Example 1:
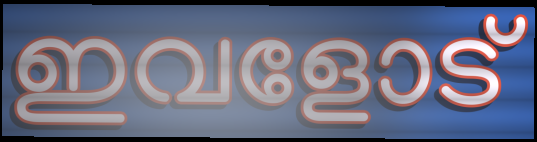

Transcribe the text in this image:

ഇവളോട്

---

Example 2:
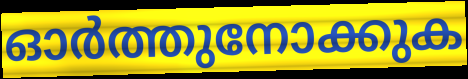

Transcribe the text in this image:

ഓർത്തുനോക്കുക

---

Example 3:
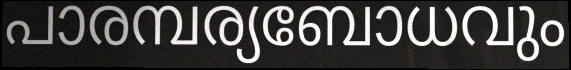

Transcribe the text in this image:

പാരമ്പര്യബോധവും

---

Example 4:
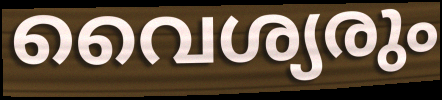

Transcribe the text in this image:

വൈശ്യരും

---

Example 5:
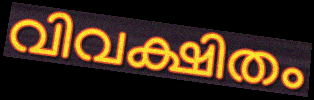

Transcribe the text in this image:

വിവക്ഷിതം